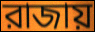
রাজায়